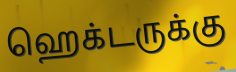
ஹெக்டருக்கு